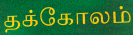
தக்கோலம்